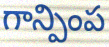
గాన్పింప